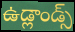
ఉడ్లాండ్స్